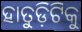
ହାତୁଡ଼ିଟିକୁ